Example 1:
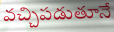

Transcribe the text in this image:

వచ్చిపడుతూనే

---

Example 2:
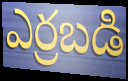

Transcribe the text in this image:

ఎర్రబడి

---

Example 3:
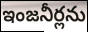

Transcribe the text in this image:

ఇంజనీర్లను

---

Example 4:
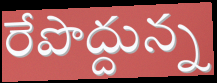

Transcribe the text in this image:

రేపొద్దున్న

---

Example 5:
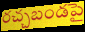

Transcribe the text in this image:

రచ్చబండపై